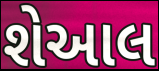
શેઆલ